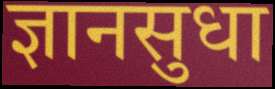
ज्ञानसुधा